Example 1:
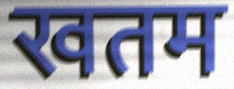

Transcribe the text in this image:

खतम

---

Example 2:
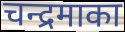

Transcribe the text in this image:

चन्द्रमाका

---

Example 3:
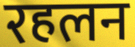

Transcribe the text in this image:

रहलन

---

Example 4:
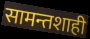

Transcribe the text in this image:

सामन्तशाही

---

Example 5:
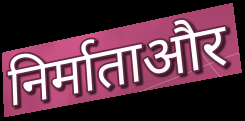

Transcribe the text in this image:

निर्माताऔर